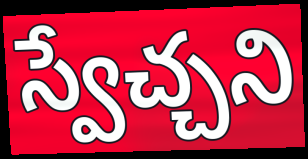
స్వేచ్చని